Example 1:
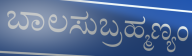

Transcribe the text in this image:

ಬಾಲಸುಬ್ರಹ್ಮಣ್ಯಂ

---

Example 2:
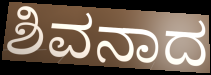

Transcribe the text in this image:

ಶಿವನಾದ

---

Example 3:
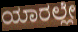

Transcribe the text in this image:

ಯಾರಲ್ಲೇ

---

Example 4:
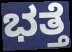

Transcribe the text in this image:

ಭತ್ತೆ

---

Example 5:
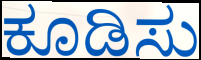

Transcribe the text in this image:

ಕೂಡಿಸು